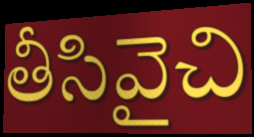
తీసివైచి